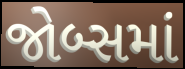
જોબ્સમાં